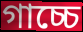
গাচ্চে